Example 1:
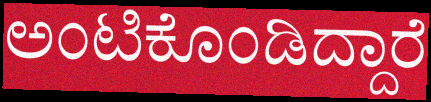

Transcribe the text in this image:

ಅಂಟಿಕೊಂಡಿದ್ದಾರೆ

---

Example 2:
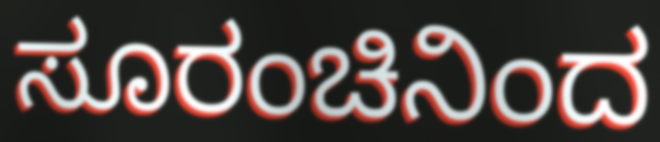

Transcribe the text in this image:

ಸೂರಂಚಿನಿಂದ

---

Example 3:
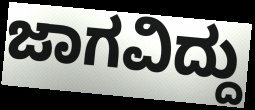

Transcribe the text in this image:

ಜಾಗವಿದ್ದು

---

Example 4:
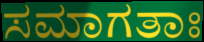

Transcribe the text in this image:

ಸಮಾಗತಾಃ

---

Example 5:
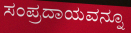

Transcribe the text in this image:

ಸಂಪ್ರದಾಯವನ್ನೂ